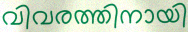
വിവരത്തിനായി